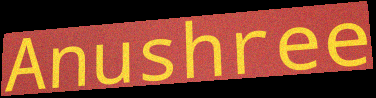
Anushree